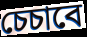
চেচাবে